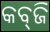
କବ୍‍ଜି